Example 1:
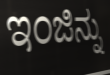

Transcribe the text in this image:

ಇಂಜಿನ್ನು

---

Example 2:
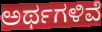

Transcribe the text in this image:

ಅರ್ಥಗಳಿವೆ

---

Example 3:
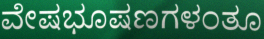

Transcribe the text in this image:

ವೇಷಭೂಷಣಗಳಂತೂ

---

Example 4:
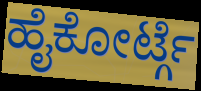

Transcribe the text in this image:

ಹೈಕೋರ್ಟ್ಗೆ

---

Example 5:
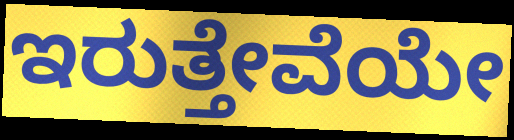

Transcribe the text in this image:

ಇರುತ್ತೇವೆಯೇ